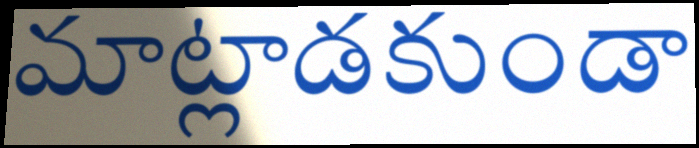
మాట్లాడకుండా